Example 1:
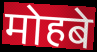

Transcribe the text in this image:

मोहबे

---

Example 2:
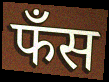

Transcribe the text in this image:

फँस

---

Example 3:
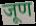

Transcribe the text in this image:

जूण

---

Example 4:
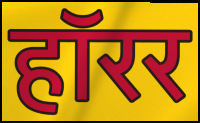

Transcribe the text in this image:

हॉरर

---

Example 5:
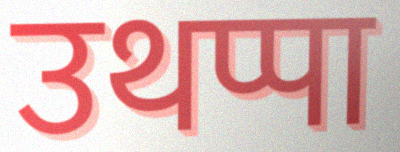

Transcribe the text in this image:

उथप्पा